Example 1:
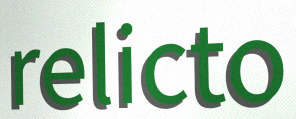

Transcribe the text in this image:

relicto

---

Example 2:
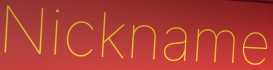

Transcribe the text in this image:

Nickname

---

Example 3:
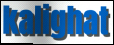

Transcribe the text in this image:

kalighat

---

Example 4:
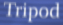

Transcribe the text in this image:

Tripod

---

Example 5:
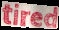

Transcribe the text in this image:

tired